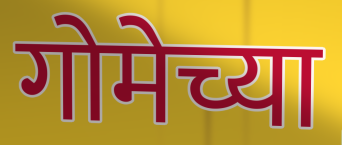
गोमेच्या